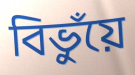
বিভুঁয়ে